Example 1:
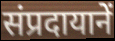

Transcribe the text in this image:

संप्रदायानें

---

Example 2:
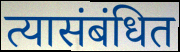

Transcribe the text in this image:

त्यासंबंधित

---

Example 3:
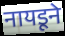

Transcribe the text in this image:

नायडूने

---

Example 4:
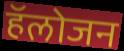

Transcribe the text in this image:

हॅलोजन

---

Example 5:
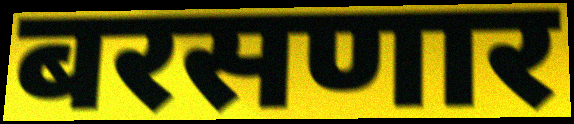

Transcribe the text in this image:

बरसणार